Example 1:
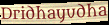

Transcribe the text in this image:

Dridhayudha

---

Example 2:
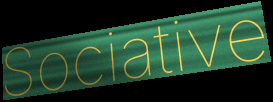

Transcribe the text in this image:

Sociative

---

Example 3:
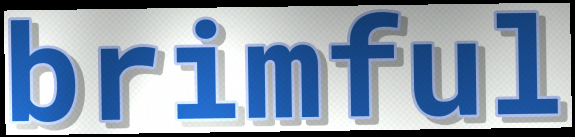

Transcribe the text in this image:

brimful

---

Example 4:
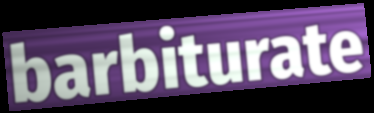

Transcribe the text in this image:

barbiturate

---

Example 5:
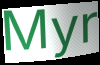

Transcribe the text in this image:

Myr